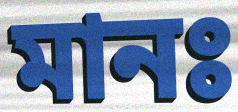
মানঃ